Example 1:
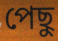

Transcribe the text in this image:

পেছু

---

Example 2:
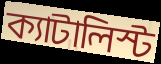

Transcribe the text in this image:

ক্যাটালিস্ট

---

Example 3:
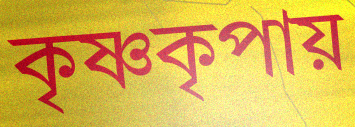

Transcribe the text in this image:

কৃষ্ণকৃপায়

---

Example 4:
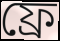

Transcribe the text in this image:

ফ্রে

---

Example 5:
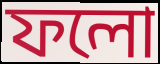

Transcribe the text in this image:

ফলো